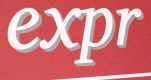
expr